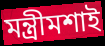
মন্ত্রীমশাই